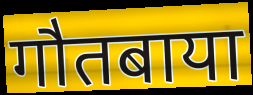
गौतबाया